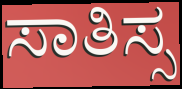
ಸಾತಿಸ್ಸ